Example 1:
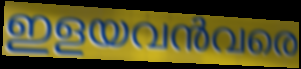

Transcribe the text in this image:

ഇളയവൻവരെ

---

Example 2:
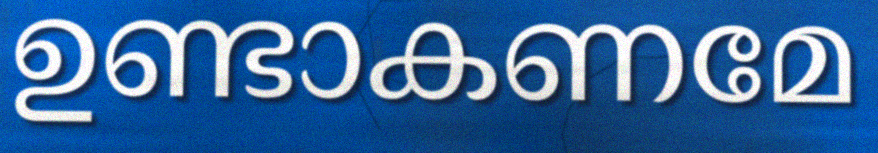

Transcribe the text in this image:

ഉണ്ടാകണമേ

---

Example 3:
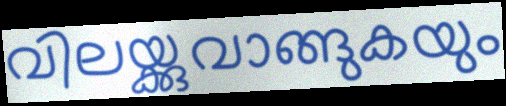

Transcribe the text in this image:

വിലയ്ക്കുവാങ്ങുകയും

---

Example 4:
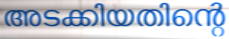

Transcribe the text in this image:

അടക്കിയതിന്റെ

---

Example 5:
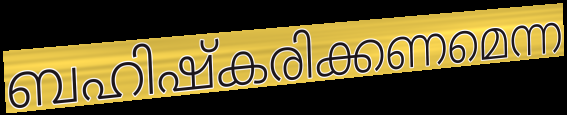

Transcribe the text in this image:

ബഹിഷ്കരിക്കണമെന്ന